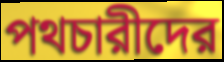
পথচারীদের